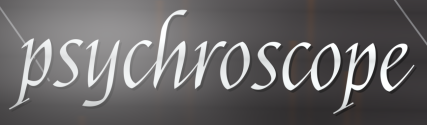
psychroscope